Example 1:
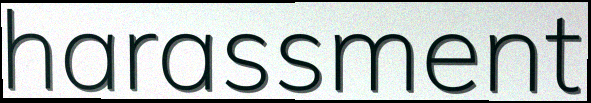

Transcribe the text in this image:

harassment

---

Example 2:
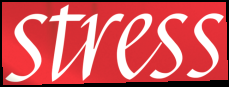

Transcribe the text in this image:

stress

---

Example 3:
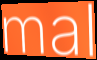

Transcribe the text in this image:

mal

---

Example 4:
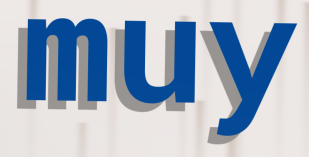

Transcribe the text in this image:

muy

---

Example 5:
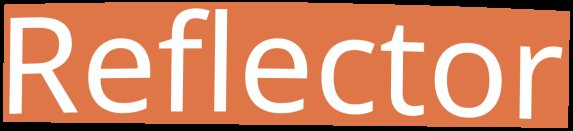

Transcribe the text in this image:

Reflector